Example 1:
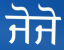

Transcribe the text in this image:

ਜੋਜੋ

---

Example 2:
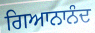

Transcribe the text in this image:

ਗਿਆਨਾਨੰਦ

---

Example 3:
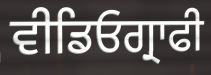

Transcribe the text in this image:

ਵੀਡਿਓਗ੍ਰਾਫੀ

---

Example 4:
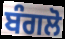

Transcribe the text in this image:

ਬੰਗਲੋ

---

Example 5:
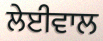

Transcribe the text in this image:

ਲੇਈਵਾਲ